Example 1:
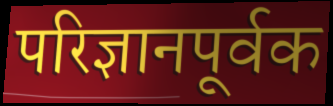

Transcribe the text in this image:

परिज्ञानपूर्वक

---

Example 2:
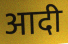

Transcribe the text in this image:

आदी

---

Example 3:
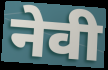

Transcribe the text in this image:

नेवी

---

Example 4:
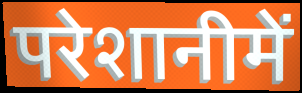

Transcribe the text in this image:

परेशानीमें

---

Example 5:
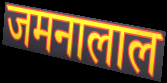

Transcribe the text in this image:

जमनालाल